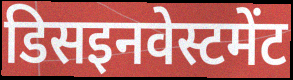
डिसइनवेस्टमेंट